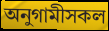
অনুগামীসকল